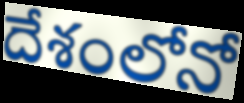
దేశంలోనో